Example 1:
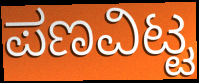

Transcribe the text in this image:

ಪಣವಿಟ್ಟ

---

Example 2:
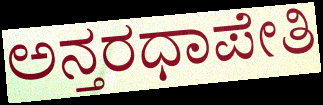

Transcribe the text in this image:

ಅನ್ತರಧಾಪೇತಿ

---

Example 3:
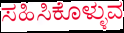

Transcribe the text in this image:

ಸಹಿಸಿಕೊಳ್ಳುವ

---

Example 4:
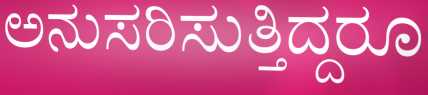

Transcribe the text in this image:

ಅನುಸರಿಸುತ್ತಿದ್ದರೂ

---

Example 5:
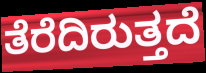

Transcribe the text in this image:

ತೆರೆದಿರುತ್ತದೆ